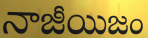
నాజీయిజం